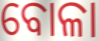
ବୋଳା